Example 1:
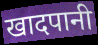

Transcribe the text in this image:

खादपानी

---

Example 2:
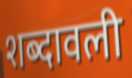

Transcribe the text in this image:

शब्दावली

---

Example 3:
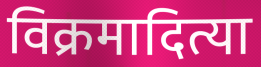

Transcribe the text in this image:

विक्रमादित्या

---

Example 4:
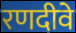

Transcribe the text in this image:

रणदीवे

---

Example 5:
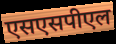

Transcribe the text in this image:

एसएसपीएल